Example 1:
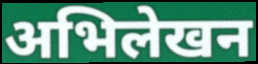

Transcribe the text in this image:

अभिलेखन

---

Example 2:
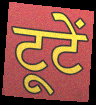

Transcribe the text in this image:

टूटें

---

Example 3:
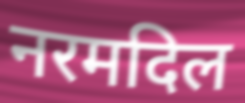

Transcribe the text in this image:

नरमदिल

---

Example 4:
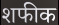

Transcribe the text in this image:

शफीक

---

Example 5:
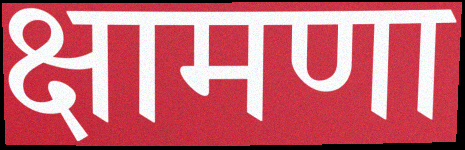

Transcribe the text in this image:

क्षामणा